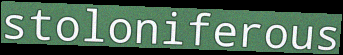
stoloniferous